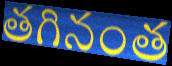
తగినంత